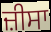
ਜ਼ੀਸਾ